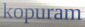
kopuram